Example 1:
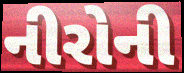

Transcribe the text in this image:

નીરોની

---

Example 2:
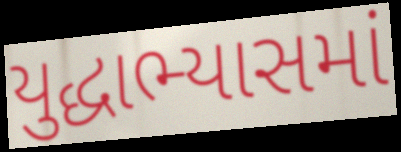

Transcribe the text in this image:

યુદ્ધાભ્યાસમાં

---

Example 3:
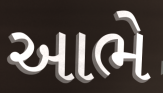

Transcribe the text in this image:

આભે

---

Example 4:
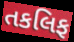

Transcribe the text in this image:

તકલિફ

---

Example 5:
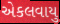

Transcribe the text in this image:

એકલવાયુ